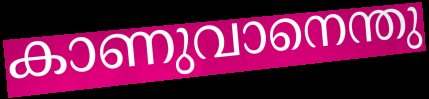
കാണുവാനെന്തു